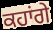
ਕਹਾਂਗੇ